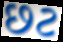
છટ